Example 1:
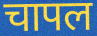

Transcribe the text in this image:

चापल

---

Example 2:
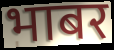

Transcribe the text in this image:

भाबर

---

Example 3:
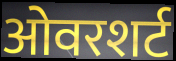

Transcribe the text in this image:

ओवरशर्ट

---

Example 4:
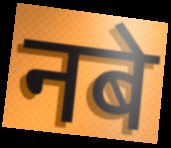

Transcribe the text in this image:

नबे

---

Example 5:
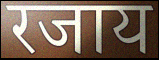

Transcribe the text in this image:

रजाय